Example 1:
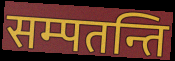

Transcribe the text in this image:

सम्पतन्ति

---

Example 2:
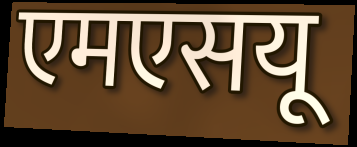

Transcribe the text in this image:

एमएसयू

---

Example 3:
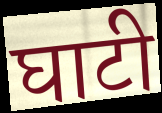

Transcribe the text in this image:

घाटी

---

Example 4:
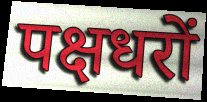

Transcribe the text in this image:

पक्षधरों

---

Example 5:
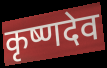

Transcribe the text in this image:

कृष्णदेव